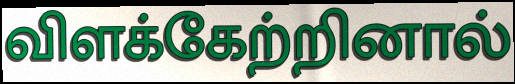
விளக்கேற்றினால்